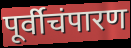
पूर्वीचंपारण